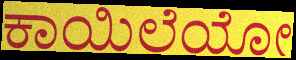
ಕಾಯಿಲೆಯೋ